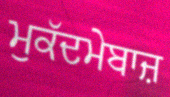
ਮੁਕੱਦਮੇਬਾਜ਼